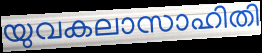
യുവകലാസാഹിതി